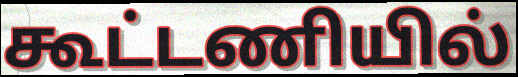
கூட்டணியில்